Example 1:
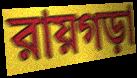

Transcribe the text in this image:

রায়গড়া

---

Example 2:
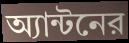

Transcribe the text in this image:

অ্যান্টনের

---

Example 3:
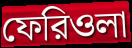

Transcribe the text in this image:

ফেরিওলা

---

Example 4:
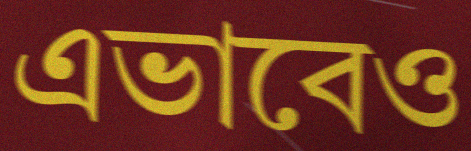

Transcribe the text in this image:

এভাবেও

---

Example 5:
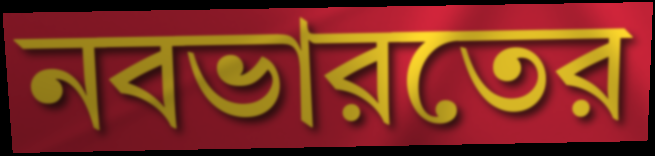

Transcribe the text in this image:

নবভারতের